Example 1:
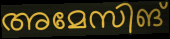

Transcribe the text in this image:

അമേസിങ്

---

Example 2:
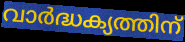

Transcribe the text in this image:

വാർദ്ധക്യത്തിന്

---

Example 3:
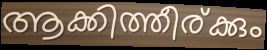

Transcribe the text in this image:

ആക്കിത്തീര്ക്കും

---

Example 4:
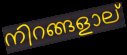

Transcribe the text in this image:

നിറങ്ങളാല്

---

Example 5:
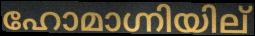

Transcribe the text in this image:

ഹോമാഗ്നിയില്